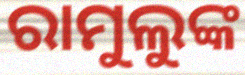
ରାମୁଲୁଙ୍କ